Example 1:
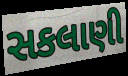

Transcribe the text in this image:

સકલાણી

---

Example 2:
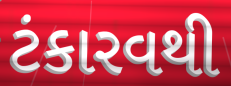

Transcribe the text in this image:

ટંકારવથી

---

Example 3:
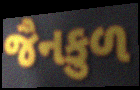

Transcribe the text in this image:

જૈનકુળ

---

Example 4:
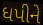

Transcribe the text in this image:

ધપીને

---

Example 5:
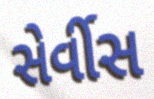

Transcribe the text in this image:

સેર્વીસ